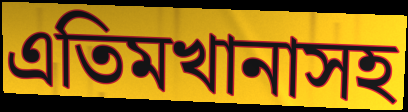
এতিমখানাসহ